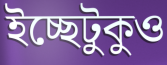
ইচ্ছেটুকুও